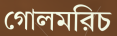
গোলমরিচ